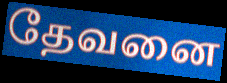
தேவனை